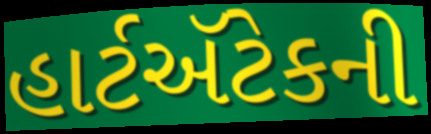
હાર્ટઍટેકની